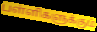
பள்ளிகளுக்கும்